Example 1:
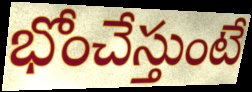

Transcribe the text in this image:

భోంచేస్తుంటే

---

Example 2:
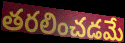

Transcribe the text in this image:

తరలించడమే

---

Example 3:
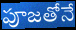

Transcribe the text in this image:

పూజతోనే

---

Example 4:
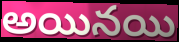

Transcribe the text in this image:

అయినయి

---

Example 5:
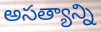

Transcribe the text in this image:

అసత్యాన్ని